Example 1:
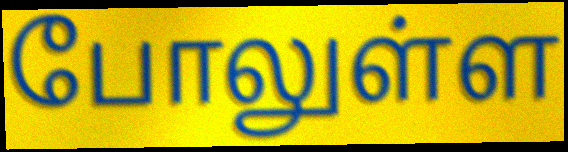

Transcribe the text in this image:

போலுள்ள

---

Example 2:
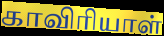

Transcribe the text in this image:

காவிரியாள்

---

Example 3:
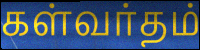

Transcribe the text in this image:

கள்வர்தம்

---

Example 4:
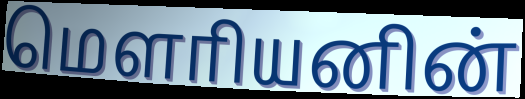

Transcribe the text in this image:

மௌரியனின்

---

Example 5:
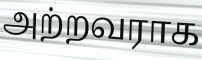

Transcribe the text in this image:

அற்றவராக